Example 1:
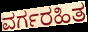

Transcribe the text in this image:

ವರ್ಗರಹಿತ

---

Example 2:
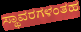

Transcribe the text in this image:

ಸ್ಥಾವರಗಳಂತಹ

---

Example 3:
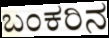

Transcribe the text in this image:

ಬಂಕರಿನ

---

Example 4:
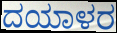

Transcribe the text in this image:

ದಯಾಳರ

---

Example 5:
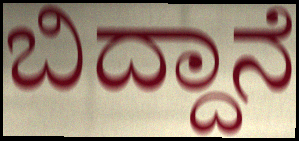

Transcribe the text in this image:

ಬಿದ್ದಾನೆ